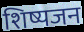
शिष्यजन